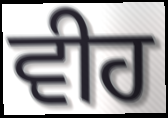
ਵੀਹ